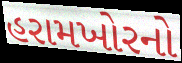
હરામખોરનો